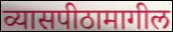
व्यासपीठामागील